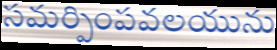
సమర్పింపవలయును